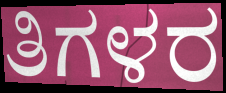
ತಿಗಳರ